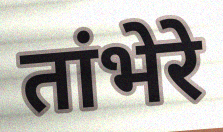
तांभेरे